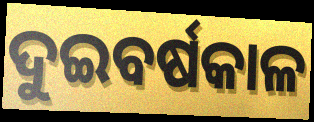
ଦୁଇବର୍ଷକାଳ